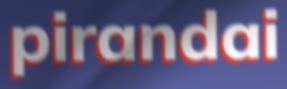
pirandai